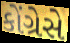
કોંગ્રેસે